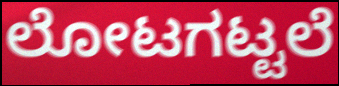
ಲೋಟಗಟ್ಟಲೆ